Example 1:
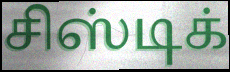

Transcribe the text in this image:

சிஸ்டிக்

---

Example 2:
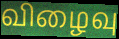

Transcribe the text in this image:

விழைவு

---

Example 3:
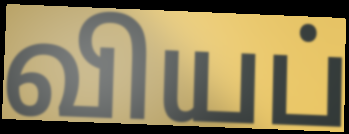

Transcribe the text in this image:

வியப்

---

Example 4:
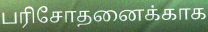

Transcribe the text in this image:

பரிசோதனைக்காக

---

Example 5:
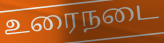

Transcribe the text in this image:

உரைநடை